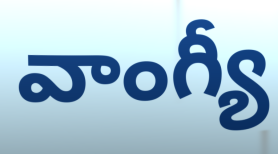
వాంగ్యీ